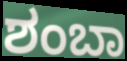
ಶಂಬಾ